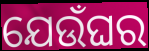
ଯେଉଁଘର